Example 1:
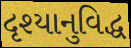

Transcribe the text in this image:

દૃશ્યાનુવિદ્ધ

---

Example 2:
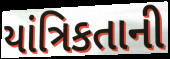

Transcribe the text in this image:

યાંત્રિકતાની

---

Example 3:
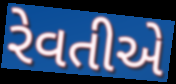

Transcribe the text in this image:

રેવતીએ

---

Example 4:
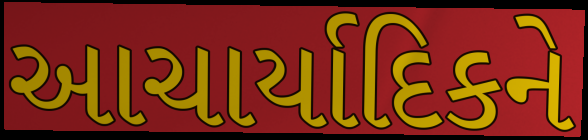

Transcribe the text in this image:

આચાર્યાદિકને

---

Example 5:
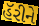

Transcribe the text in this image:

હૅરીને